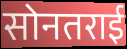
सोनतराई